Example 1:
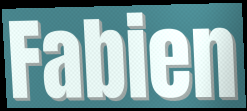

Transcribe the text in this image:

Fabien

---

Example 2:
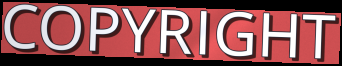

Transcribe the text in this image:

COPYRIGHT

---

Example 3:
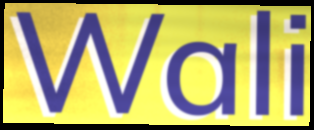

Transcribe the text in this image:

Wali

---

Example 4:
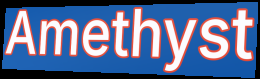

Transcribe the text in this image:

Amethyst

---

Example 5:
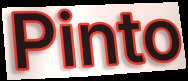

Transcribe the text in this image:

Pinto